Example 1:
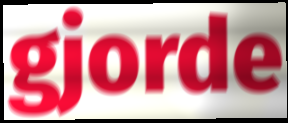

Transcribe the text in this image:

gjorde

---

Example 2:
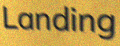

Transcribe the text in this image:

Landing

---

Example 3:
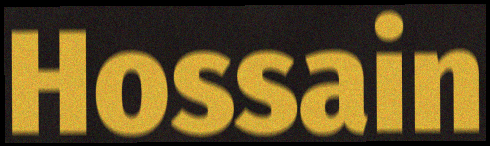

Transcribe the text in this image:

Hossain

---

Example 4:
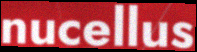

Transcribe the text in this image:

nucellus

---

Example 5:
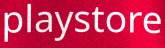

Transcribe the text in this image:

playstore